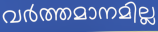
വർത്തമാനമില്ല